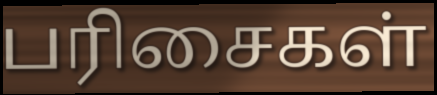
பரிசைகள்